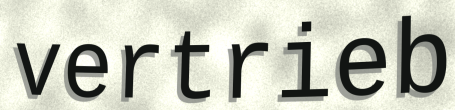
vertrieb